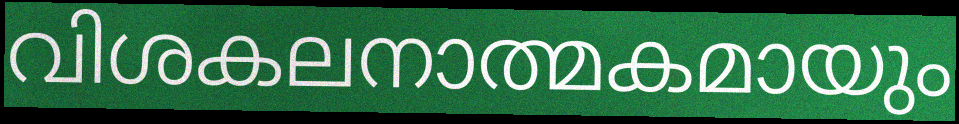
വിശകലനാത്മകമായും